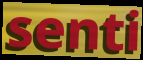
senti